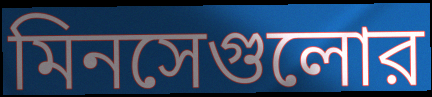
মিনসেগুলোর